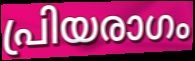
പ്രിയരാഗം